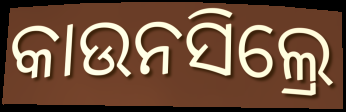
କାଉନସିଲ୍ରେ